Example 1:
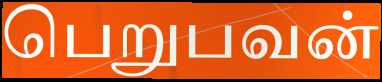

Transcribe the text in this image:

பெறுபவன்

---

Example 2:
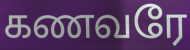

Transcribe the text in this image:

கணவரே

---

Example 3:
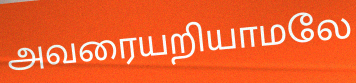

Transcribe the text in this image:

அவரையறியாமலே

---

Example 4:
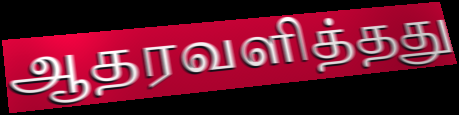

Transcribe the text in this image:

ஆதரவளித்தது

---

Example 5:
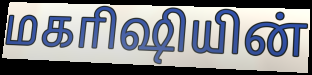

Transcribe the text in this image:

மகரிஷியின்